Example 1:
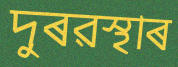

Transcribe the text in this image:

দুৰৱস্থাৰ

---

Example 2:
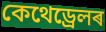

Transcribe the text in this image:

কেথেড্ৰেলৰ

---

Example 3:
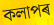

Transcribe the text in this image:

কলাপৰ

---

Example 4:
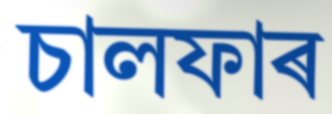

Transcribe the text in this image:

চালফাৰ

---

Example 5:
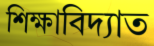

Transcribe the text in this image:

শিক্ষাবিদ্যাত